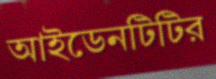
আইডেনটিটির